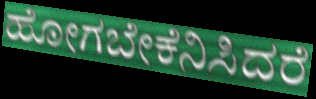
ಹೋಗಬೇಕೆನಿಸಿದರೆ